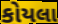
કોયલા